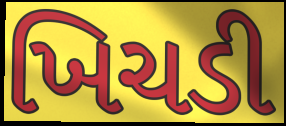
ખિચડી